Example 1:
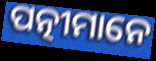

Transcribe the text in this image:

ପତ୍ନୀମାନେ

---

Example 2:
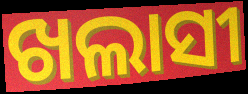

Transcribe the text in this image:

ଖଲାସୀ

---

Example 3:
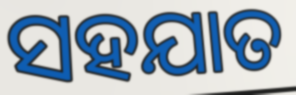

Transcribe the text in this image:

ସହଯାତ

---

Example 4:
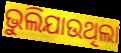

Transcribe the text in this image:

ଭୁଲିଯାଉଥିଲା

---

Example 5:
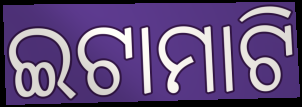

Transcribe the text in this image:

ଇଟାମାଟି